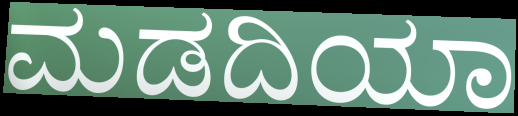
ಮಡದಿಯಾ